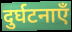
दुर्घटनाएँ